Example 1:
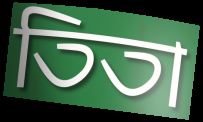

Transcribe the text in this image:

তিতা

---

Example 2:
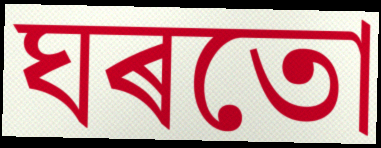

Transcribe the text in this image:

ঘৰতো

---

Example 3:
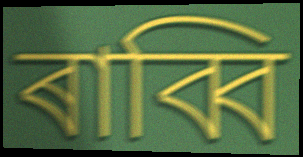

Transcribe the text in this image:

ৰাব্বি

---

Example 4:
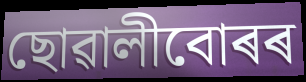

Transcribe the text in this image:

ছোৱালীবোৰৰ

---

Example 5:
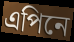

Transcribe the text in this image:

এপিনে